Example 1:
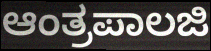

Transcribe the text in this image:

ಆಂತ್ರಪಾಲಜಿ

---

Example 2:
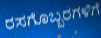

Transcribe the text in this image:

ರಸಗೊಬ್ಬರಗಳಿಗೆ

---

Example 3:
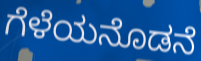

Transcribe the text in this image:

ಗೆಳೆಯನೊಡನೆ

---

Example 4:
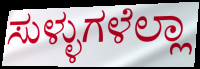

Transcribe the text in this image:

ಸುಳ್ಳುಗಳೆಲ್ಲಾ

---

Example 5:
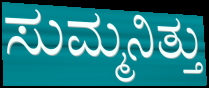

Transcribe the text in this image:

ಸುಮ್ಮನಿತ್ತು